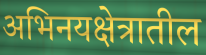
अभिनयक्षेत्रातील